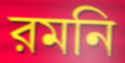
রমনি